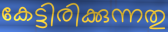
കേട്ടിരിക്കുന്നതു